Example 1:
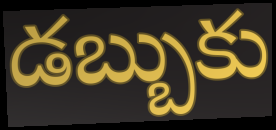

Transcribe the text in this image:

డబ్బుకు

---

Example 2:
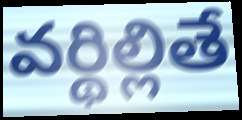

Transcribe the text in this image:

వర్థిల్లితే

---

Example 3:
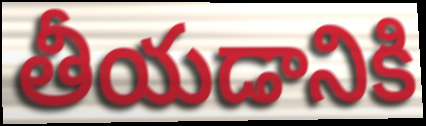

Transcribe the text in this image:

తీయడానికి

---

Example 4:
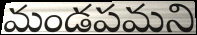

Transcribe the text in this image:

మండపమని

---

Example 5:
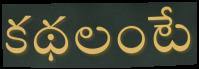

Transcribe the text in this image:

కథలంటే